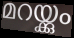
മറയ്ക്കും